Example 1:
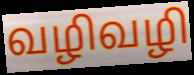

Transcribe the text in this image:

வழிவழி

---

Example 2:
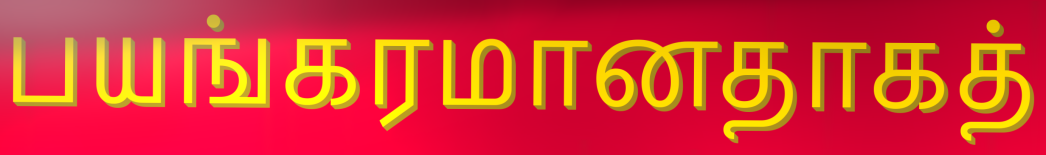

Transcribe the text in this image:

பயங்கரமானதாகத்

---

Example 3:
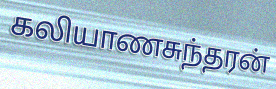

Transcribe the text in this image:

கலியாணசுந்தரன்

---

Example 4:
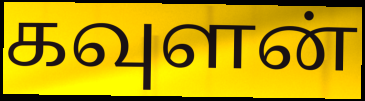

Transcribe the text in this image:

கவுளன்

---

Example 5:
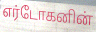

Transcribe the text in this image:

எர்டோகனின்